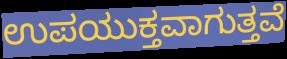
ಉಪಯುಕ್ತವಾಗುತ್ತವೆ